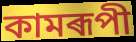
কামৰূপী